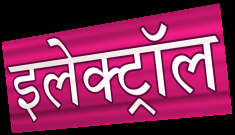
इलेक्ट्रॉल